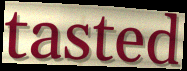
tasted